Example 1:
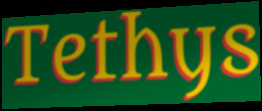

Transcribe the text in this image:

Tethys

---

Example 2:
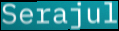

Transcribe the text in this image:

Serajul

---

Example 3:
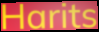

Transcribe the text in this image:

Harits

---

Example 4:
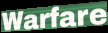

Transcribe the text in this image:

Warfare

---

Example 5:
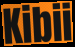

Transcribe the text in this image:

Kibii